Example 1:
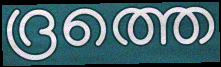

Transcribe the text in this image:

ദ്രത്തെ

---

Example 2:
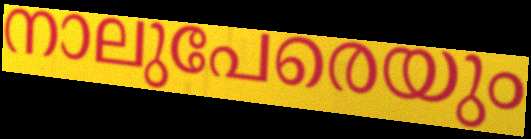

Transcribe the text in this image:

നാലുപേരെയും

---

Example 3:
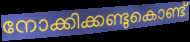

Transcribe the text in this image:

നോക്കിക്കണ്ടുകൊണ്ട്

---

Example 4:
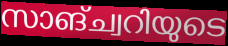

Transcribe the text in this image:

സാങ്ച്വറിയുടെ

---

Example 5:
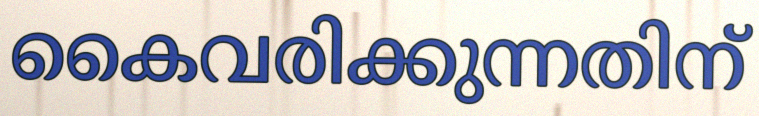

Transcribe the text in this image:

കൈവരിക്കുന്നതിന്